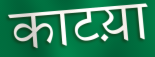
काटय़ा